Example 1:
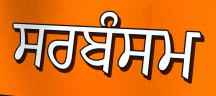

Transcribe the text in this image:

ਸਰਬੰਸਮ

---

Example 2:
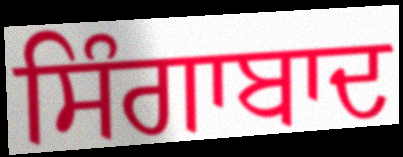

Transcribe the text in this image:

ਸਿੰਗਾਬਾਦ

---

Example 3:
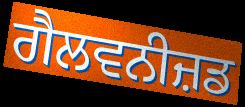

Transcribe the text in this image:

ਗੈਲਵਨੀਜ਼ਡ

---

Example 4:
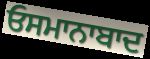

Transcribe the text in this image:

ਓਸਮਾਨਾਬਾਦ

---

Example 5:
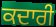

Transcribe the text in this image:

ਕਦਾਰੀ